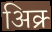
अिक्र्